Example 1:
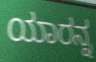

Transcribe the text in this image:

ಯಾರನ್ನ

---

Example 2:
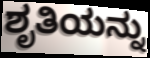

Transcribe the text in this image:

ಶೃತಿಯನ್ನು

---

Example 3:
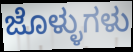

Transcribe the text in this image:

ಜೊಳ್ಳುಗಳು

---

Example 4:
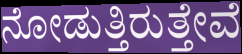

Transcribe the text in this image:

ನೋಡುತ್ತಿರುತ್ತೇವೆ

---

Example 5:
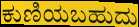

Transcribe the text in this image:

ಕುಣಿಯಬಹುದು